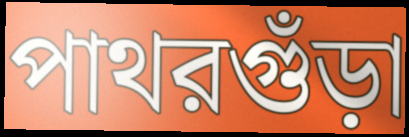
পাথরগুঁড়া